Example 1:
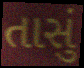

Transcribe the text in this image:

તાસું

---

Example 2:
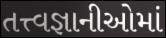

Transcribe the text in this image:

તત્ત્વજ્ઞાનીઓમાં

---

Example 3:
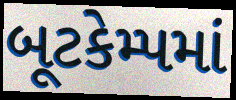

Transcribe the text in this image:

બૂટકેમ્પમાં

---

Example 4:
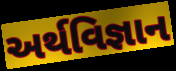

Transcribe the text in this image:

અર્થવિજ્ઞાન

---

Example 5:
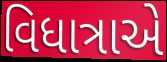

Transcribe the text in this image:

વિધાત્રાએ